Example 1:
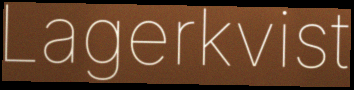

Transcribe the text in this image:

Lagerkvist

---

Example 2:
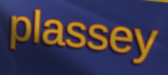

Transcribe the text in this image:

plassey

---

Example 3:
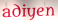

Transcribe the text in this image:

adiyen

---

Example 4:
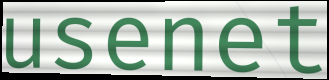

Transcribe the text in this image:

usenet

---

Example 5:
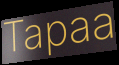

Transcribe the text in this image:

Tapaa